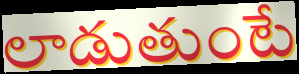
లాడుతుంటే